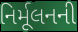
નિર્મૂલનની